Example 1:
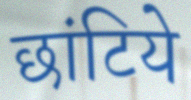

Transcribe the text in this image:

छांटिये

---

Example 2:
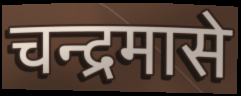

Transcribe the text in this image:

चन्द्रमासे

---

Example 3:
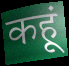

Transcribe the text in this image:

कहूं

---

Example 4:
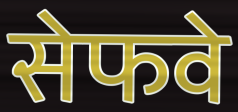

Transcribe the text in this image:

सेफवे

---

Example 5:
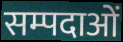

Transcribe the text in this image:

सम्पदाओं